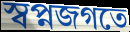
স্বপ্নজগতে